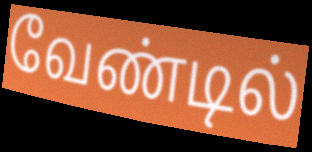
வேண்டில்